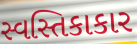
સ્વસ્તિકાકાર